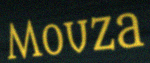
Mouza